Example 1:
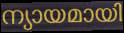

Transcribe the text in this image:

ന്യായമായി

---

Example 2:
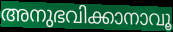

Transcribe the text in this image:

അനുഭവിക്കാനാവൂ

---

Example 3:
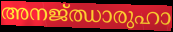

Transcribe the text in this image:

അനജ്ഝാരുഹാ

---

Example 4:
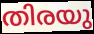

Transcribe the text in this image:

തിരയു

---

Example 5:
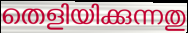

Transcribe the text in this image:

തെളിയിക്കുന്നതു